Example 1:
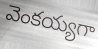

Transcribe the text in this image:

వెంకయ్యగా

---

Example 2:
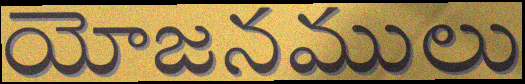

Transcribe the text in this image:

యోజనములు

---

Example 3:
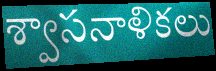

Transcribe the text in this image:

శ్వాసనాళికలు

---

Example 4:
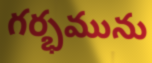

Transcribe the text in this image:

గర్భమును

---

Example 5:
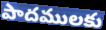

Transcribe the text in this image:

పాదములకు